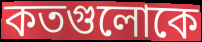
কতগুলোকে